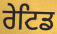
ਰੇਟਿਡ